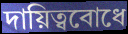
দায়িত্ববোধে